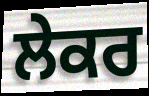
ਲੇਕਰ